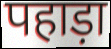
पहाड़ा